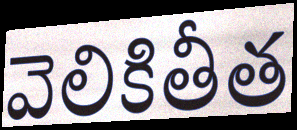
వెలికితీత